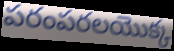
పరంపరలయొక్క